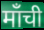
माँची